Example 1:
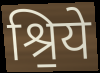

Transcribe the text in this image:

श्रि॒ये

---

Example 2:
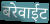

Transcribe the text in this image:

बरेवाईट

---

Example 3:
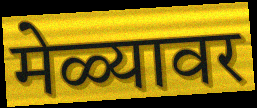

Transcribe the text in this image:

मेळ्यावर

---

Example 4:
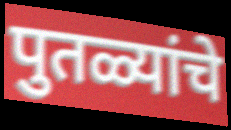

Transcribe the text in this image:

पुतळ्यांचे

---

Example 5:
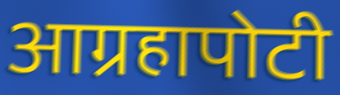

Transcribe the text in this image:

आग्रहापोटी